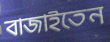
বাজাইতেন